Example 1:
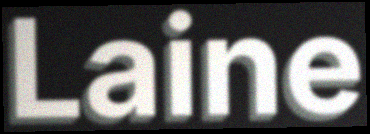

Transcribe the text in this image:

Laine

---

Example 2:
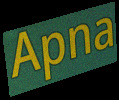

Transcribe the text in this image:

Apna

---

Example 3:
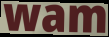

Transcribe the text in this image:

wam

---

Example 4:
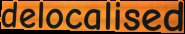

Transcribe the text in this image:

delocalised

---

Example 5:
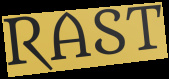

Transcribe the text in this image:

RAST